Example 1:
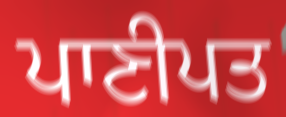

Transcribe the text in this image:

ਪਾਣੀਪਤ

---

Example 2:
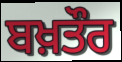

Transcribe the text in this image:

ਬਖ਼ਤੌਰ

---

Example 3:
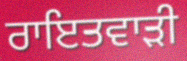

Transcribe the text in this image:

ਰਾਇਤਵਾੜੀ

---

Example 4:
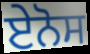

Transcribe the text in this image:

ਏਨੋਸ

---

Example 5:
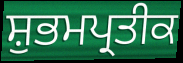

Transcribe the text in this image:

ਸ਼ੁਭਮਪ੍ਰਤੀਕ